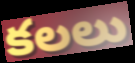
కలలు